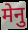
मेनु